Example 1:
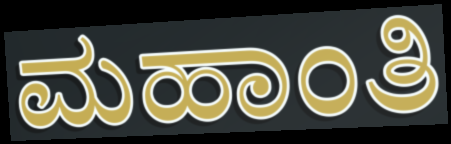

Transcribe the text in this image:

ಮಹಾಂತಿ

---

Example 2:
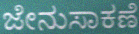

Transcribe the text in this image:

ಜೇನುಸಾಕಣೆ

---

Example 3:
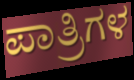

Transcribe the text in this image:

ಪಾತ್ರಿಗಳ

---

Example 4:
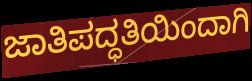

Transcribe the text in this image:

ಜಾತಿಪದ್ಧತಿಯಿಂದಾಗಿ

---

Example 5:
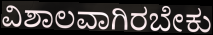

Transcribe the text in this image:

ವಿಶಾಲವಾಗಿರಬೇಕು